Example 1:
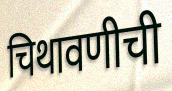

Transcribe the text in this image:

चिथावणीची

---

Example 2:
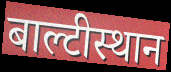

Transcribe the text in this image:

बाल्टीस्थान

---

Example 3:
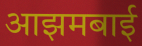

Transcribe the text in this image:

आझमबाई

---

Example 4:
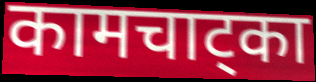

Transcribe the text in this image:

कामचाट्का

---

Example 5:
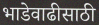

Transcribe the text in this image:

भाडेवाढीसाठी